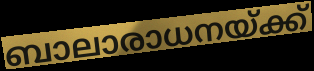
ബാലാരാധനയ്ക്ക്